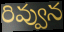
రివ్వున